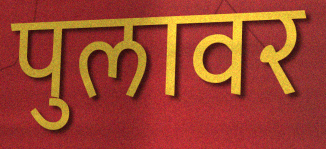
पुलावर